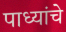
पाध्यांचे